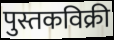
पुस्तकविक्री